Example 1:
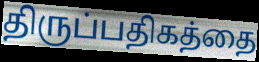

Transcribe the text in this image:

திருப்பதிகத்தை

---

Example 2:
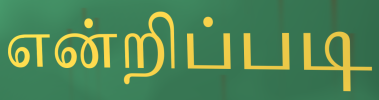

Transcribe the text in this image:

என்றிப்படி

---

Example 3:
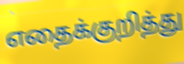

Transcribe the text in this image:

எதைக்குறித்து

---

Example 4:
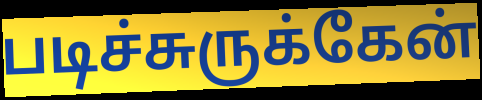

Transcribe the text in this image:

படிச்சுருக்கேன்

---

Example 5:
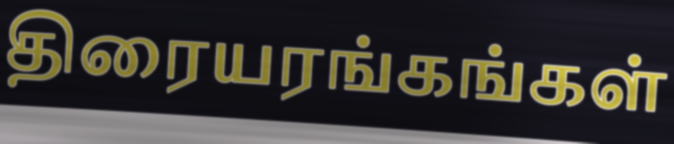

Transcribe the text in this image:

திரையரங்கங்கள்